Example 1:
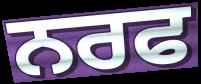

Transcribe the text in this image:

ਨਰਫ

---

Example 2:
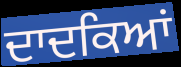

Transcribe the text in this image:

ਦਾਦਕਿਆਂ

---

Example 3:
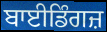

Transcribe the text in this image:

ਬਾਈਡਿੰਗਜ਼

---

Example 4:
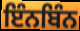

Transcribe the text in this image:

ਇੰਨਬਿੰਨ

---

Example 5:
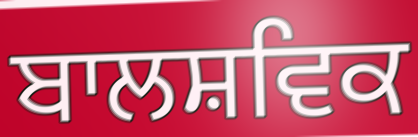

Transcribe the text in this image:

ਬਾਲਸ਼ਵਿਕ